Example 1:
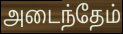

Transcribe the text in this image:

அடைந்தேம்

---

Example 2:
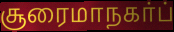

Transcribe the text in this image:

சூரைமாநகர்ப்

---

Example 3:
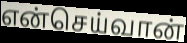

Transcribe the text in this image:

என்செய்வான்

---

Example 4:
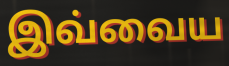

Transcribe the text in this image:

இவ்வைய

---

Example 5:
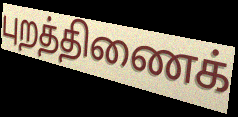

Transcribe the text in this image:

புறத்திணைக்